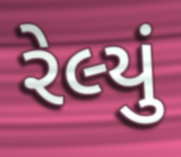
રેલ્યું